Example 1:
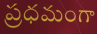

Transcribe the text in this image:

ప్రధమంగా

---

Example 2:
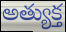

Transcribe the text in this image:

అత్యుక్త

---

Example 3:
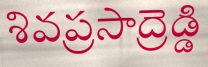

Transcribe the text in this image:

శివప్రసాద్రెడ్డి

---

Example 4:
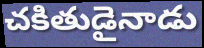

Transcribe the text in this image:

చకితుడైనాడు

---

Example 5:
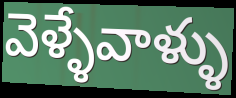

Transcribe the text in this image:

వెళ్ళేవాళ్ళు